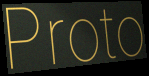
Proto